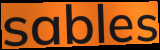
sables